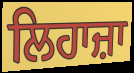
ਲਿਹਾਜ਼ਾ